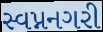
સ્વપ્નનગરી